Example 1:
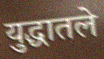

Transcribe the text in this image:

युद्धातले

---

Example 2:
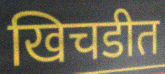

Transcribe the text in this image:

खिचडीत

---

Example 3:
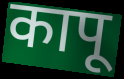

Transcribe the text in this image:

कापू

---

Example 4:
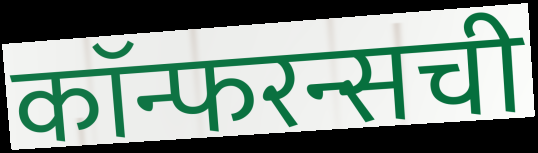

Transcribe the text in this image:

कॉन्फरन्सची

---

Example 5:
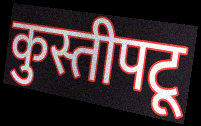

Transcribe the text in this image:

कुस्तीपटू